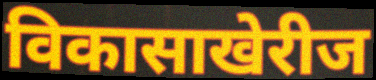
विकासाखेरीज